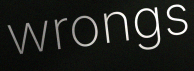
wrongs